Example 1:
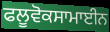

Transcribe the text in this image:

ਫਲੂਵੋਕਸਾਮਾਈਨ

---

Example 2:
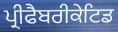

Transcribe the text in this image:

ਪ੍ਰੀਫੈਬਰੀਕੇਟਿਡ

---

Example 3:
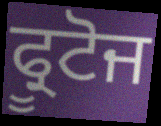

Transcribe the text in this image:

ਫ੍ਰੂਟੋਜ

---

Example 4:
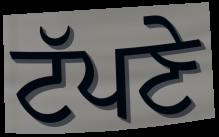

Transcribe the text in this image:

ਟੱਪਣੇ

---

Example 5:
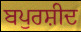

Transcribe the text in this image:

ਬਪੁਰਸ਼ੀਦ